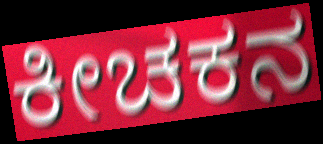
ಕೀಚಕನ